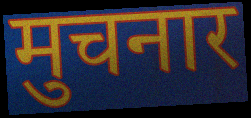
मुचनार